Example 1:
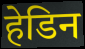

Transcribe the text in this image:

हेडिन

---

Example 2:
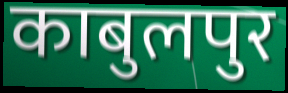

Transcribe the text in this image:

काबुलपुर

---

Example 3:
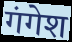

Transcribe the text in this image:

गंगेश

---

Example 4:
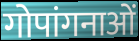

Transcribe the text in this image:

गोपांगनाओं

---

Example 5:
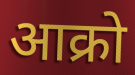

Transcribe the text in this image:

आक्रो